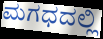
ಮಗಧದಲ್ಲಿ